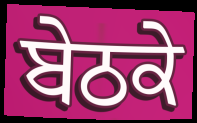
ਬੇਠਕੇ